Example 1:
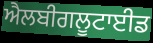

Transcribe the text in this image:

ਐਲਬੀਗਲੂਟਾਈਡ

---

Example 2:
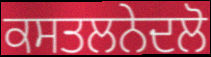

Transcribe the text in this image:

ਕਸਤਲਨੇਦਲੋ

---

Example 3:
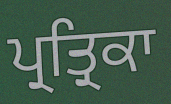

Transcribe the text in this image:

ਪ੍ਰਤ੍ਰਿਕਾ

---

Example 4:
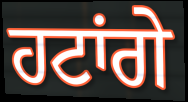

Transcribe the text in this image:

ਹਟਾਂਗੇ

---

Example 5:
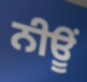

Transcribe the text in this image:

ਨੀਊਂ